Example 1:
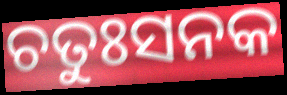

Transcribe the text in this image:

ଚତୁଃସନକ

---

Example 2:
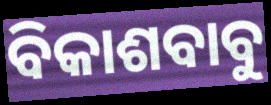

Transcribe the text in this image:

ବିକାଶବାବୁ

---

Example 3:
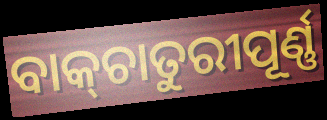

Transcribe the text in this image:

ବାକ୍‌ଚାତୁରୀପୂର୍ଣ୍ଣ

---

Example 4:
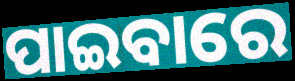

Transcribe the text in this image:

ପାଇବାରେ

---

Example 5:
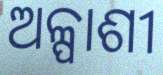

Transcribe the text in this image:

ଅଳ୍ପାଶୀ